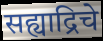
सह्याद्रिचे